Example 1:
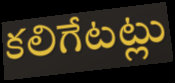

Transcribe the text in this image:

కలిగేటట్లు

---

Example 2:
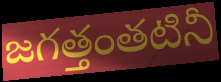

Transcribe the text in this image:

జగత్తంతటినీ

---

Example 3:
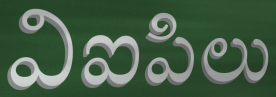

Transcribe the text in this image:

విఐపిలు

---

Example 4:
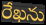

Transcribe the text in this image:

రేఖను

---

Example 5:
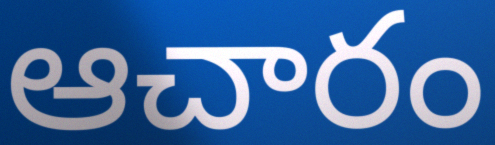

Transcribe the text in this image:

ఆచారం